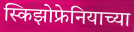
स्किझोफ्रेनियाच्या